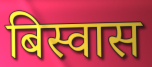
बिस्वास